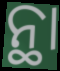
ନ୍ଥା